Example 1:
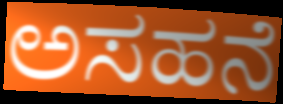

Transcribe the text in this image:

ಅಸಹನೆ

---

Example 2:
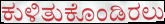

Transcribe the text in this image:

ಕುಳಿತುಕೊಂಡಿರಲು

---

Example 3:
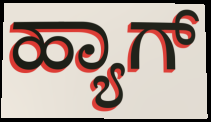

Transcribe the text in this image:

ಹ್ಯಾಗ್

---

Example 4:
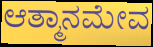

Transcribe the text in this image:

ಆತ್ಮಾನಮೇವ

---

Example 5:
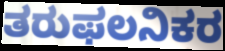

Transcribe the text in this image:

ತರುಫಲನಿಕರ